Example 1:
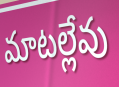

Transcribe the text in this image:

మాటల్లేవు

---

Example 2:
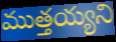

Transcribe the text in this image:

ముత్తయ్యని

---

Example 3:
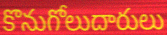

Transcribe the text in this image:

కొనుగోలుదారులు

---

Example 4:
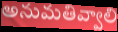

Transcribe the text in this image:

అనుమతివ్వాలి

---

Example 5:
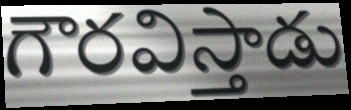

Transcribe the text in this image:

గౌరవిస్తాడు